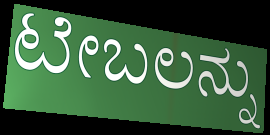
ಟೇಬಲನ್ನು